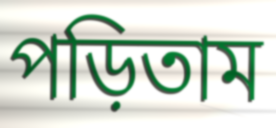
পড়িতাম